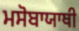
ਮਸੋਬਾਯਾਥੀ